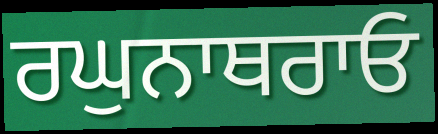
ਰਘੁਨਾਥਰਾਓ